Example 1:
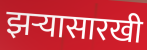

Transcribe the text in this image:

झर्‍यासारखी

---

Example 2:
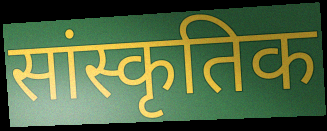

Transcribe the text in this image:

सांस्कृतिक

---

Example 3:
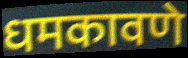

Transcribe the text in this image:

धमकावणे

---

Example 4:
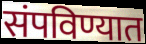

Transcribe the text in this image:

संपविण्यात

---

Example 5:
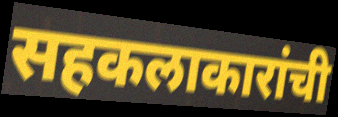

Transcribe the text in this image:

सहकलाकारांची